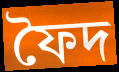
ফৈদ